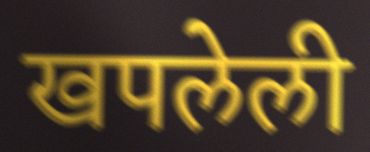
खपलेली